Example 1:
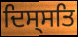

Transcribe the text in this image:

ਦਿਸ੍ਸਤਿ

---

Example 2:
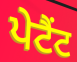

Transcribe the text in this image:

ਪੇਟੈਂਟ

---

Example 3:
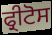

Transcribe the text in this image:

ਫ੍ਰੀਟੋਸ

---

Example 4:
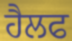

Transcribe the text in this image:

ਹੈਲਫ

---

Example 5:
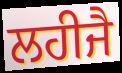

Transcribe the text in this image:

ਲਹੀਜੈ